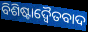
ବିଶିଷ୍ଟାଦ୍ୱୈତବାଦ